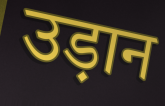
उड़ान